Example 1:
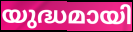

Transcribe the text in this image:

യുദ്ധമായി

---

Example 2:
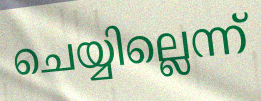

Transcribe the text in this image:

ചെയ്യില്ലെന്ന്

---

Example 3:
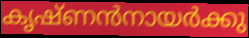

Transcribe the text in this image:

കൃഷ്ണൻനായർക്കു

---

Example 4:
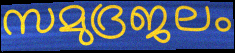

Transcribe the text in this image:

സമുദ്രജലം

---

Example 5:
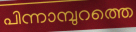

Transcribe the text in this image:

പിന്നാമ്പുറത്തെ